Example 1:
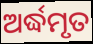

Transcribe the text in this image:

ଅର୍ଦ୍ଧମୃତ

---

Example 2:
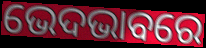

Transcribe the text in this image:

ଭେଦଭାବରେ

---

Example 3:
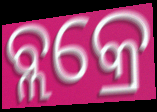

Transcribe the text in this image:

ବ୍ଲକ୍ରେ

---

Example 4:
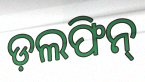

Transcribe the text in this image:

ଡ଼ଲଫିନ୍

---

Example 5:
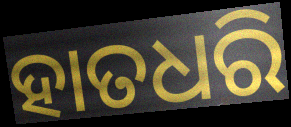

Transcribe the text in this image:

ହାତଧରି